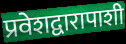
प्रवेशद्वारापाशी